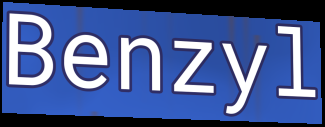
Benzyl